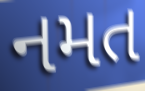
નમત